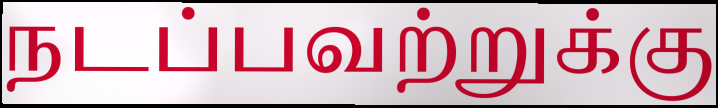
நடப்பவற்றுக்கு